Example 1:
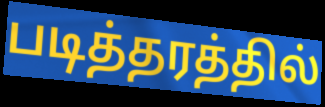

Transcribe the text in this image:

படித்தரத்தில்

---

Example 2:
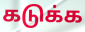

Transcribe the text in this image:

கடுக்க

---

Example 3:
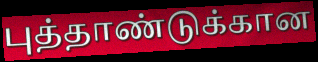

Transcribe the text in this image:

புத்தாண்டுக்கான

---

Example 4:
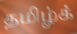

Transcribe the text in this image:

தமிழ்க்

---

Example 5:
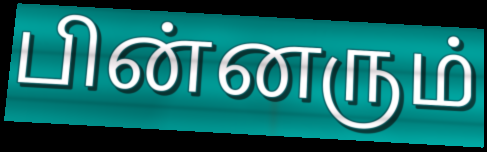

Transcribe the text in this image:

பின்னரும்